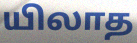
யிலாத